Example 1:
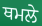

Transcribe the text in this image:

ਥਮਲੇ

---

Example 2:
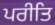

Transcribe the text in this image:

ਪਰੀਤਿ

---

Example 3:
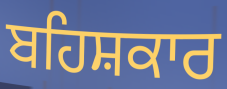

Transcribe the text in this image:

ਬਹਿਸ਼ਕਾਰ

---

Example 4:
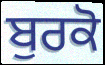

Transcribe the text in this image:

ਬੁਰਕੋ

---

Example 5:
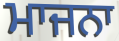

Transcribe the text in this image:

ਮਾਜਨਾ